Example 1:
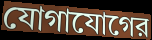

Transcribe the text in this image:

যোগাযোগের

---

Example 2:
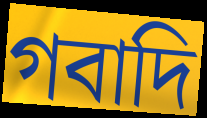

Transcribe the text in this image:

গবাদি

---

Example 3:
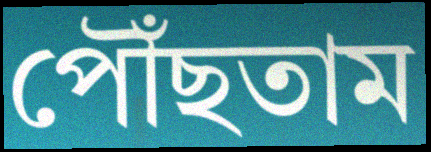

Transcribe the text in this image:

পৌঁছতাম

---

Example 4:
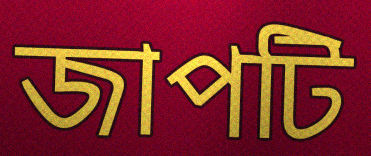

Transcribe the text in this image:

জাপটি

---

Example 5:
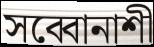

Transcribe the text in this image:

সব্বোনাশী